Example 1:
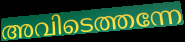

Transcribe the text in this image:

അവിടെത്തന്നേ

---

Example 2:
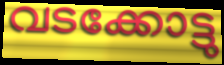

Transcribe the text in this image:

വടക്കോട്ടു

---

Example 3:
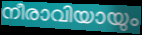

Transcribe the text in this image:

നീരാവിയായും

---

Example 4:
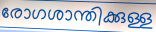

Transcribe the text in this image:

രോഗശാന്തിക്കുള്ള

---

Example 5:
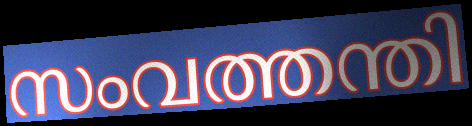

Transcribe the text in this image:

സംവത്തന്തി